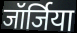
जॉर्जिया